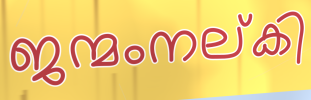
ജന്മംനല്കി